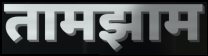
तामझाम